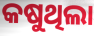
କଷୁଥିଲା